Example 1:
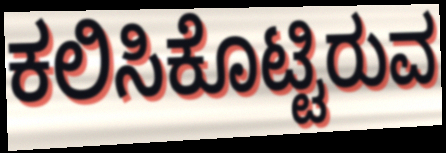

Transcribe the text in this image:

ಕಲಿಸಿಕೊಟ್ಟಿರುವ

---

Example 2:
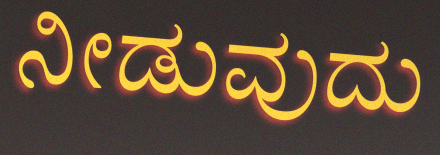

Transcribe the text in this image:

ನೀಡುವುದು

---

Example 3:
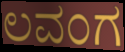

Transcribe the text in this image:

ಲವಂಗ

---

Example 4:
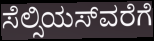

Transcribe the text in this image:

ಸೆಲ್ಸಿಯಸ್‍ವರೆಗೆ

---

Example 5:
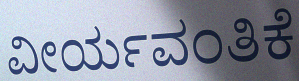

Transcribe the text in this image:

ವೀರ್ಯವಂತಿಕೆ